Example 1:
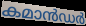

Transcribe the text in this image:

കമാൻഡർ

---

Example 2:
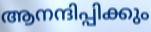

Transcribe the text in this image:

ആനന്ദിപ്പിക്കും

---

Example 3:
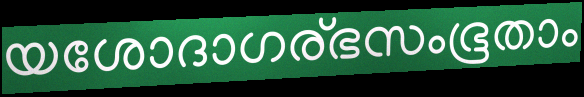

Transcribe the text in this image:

യശോദാഗര്ഭസംഭൂതാം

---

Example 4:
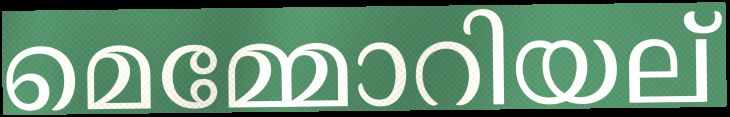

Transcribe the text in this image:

മെമ്മോറിയല്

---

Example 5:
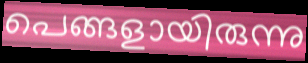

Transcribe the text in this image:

പെങ്ങളായിരുന്നു